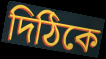
দিঠিকে